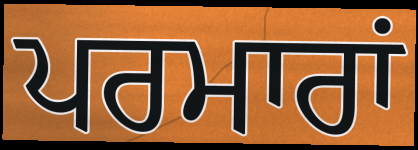
ਪਰਮਾਰਾਂ